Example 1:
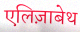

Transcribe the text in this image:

एलिज़ाबेथ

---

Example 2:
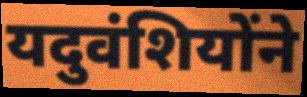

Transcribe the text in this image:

यदुवंशियोंने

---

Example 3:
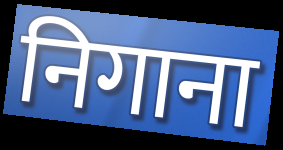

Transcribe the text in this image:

निगाना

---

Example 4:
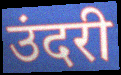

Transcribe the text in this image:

उंदरी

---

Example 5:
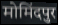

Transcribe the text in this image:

मोमिंदपुर